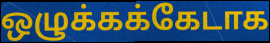
ஒழுக்கக்கேடாக